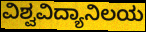
ವಿಶ್ವವಿದ್ಯಾನಿಲಯ